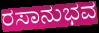
ರಸಾನುಭವ